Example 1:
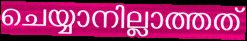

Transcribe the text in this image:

ചെയ്യാനില്ലാത്തത്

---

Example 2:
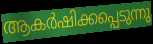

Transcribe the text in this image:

ആകർഷിക്കപ്പെടുന്നു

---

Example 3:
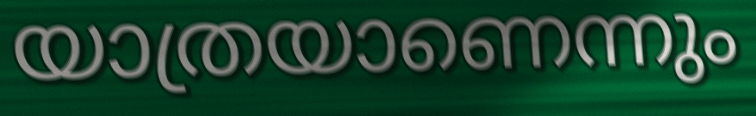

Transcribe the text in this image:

യാത്രയാണെന്നും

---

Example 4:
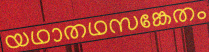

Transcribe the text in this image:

യഥാതഥസങ്കേതം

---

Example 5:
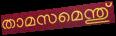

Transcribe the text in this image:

താമസമെന്തു്